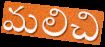
మలిచి